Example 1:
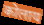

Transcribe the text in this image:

कोलाय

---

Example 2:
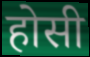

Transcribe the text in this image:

होसी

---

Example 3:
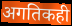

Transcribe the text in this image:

अगतिकही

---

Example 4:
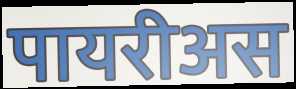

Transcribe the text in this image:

पायरीअस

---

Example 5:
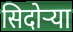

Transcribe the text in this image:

सिदोर्‍या